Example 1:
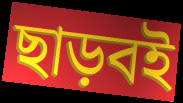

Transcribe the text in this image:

ছাড়বই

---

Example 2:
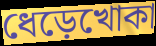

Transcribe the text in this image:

ধেড়েখোকা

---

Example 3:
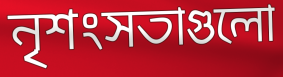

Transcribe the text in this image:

নৃশংসতাগুলো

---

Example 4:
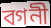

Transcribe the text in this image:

বগনী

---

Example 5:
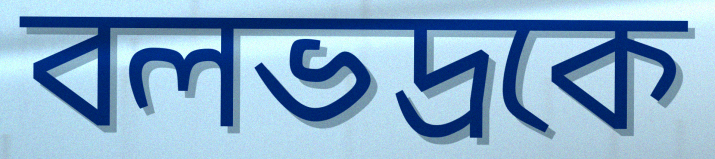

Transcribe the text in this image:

বলভদ্রকে